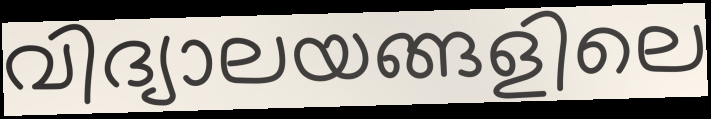
വിദ്യാലയങ്ങളിലെ